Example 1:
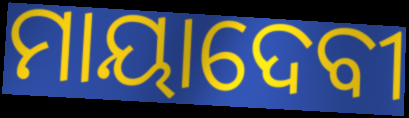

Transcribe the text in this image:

ମାୟାଦେବୀ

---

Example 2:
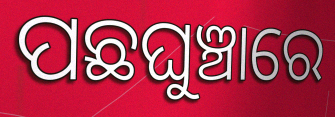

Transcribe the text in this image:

ପଛଘୁଞ୍ଚାରେ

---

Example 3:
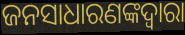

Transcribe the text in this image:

ଜନସାଧାରଣଙ୍କଦ୍ବାରା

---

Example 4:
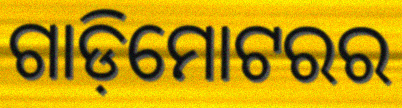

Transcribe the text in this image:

ଗାଡ଼ିମୋଟରର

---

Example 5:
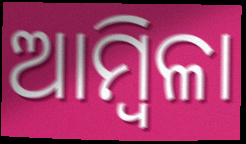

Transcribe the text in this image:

ଆମ୍ବିଳା